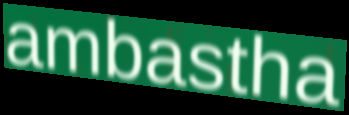
ambastha